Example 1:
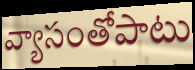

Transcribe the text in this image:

వ్యాసంతోపాటు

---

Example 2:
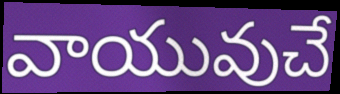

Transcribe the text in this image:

వాయువుచే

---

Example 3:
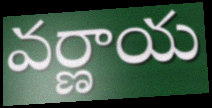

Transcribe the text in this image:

వర్ణాయ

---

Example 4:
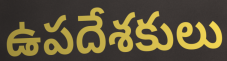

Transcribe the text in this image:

ఉపదేశకులు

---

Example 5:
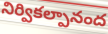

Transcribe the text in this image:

నిర్వికల్పానంద